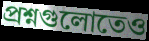
প্রশ্নগুলোতেও